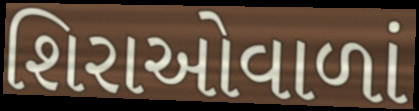
શિરાઓવાળાં